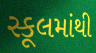
સ્કૂલમાંથી